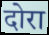
दोरा